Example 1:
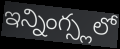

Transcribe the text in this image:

ఇన్నింగ్స్లలో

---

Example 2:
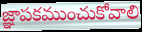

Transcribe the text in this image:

జ్ఞాపకముంచుకోవాలి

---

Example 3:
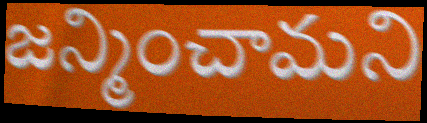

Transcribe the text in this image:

జన్మించామని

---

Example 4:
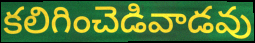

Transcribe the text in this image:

కలిగించెడివాడవు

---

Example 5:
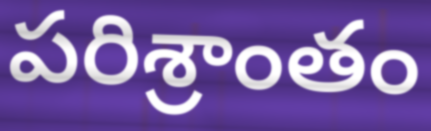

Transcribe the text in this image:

పరిశ్రాంతం